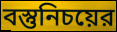
বস্তুনিচয়ের